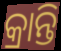
କ୍ରାନ୍ତି